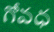
గోవధ